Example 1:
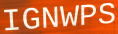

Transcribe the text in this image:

IGNWPS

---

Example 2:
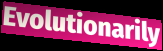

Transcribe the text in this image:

Evolutionarily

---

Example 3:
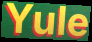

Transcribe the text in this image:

Yule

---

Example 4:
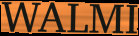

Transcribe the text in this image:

WALMI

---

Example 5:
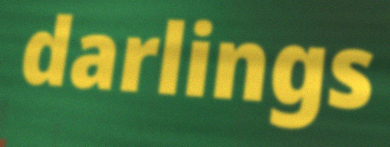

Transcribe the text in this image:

darlings